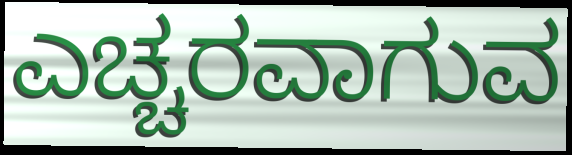
ಎಚ್ಚರವಾಗುವ